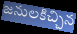
జనులకిచ్చిన